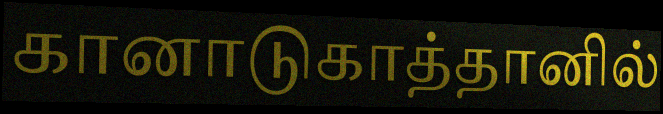
கானாடுகாத்தானில்